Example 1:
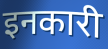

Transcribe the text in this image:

इनकारी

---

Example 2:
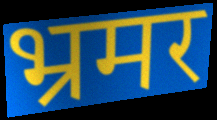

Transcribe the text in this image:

भ्रमर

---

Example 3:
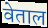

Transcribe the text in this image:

वेताल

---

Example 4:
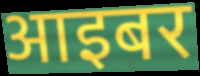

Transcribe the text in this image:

आइबर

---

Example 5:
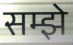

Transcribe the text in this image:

सम्झे